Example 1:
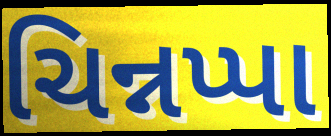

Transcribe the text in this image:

ચિન્નપ્પા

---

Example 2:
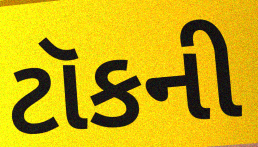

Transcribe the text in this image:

ટૉકની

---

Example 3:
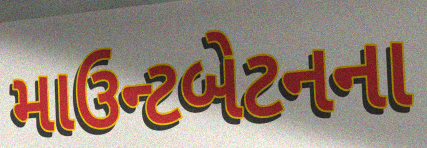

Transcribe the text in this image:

માઉન્ટબેટનના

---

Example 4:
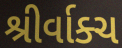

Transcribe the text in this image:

શ્રીર્વાક્ચ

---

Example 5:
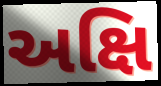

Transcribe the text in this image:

અક્ષિ